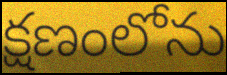
క్షణంలోను